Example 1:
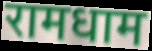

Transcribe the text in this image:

रामधाम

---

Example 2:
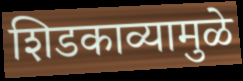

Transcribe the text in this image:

शिडकाव्यामुळे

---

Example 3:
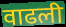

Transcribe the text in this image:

वाढली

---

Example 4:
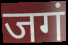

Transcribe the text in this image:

जगं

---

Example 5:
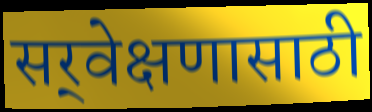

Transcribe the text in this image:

सर्वेक्षणासाठी